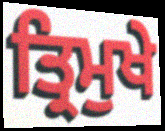
ਤ੍ਰਿਮੁਖੇ